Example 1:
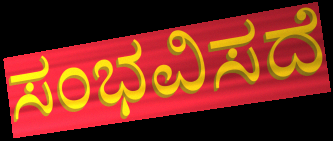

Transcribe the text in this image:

ಸಂಭವಿಸದೆ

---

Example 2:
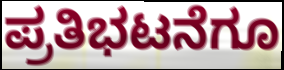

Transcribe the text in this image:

ಪ್ರತಿಭಟನೆಗೂ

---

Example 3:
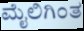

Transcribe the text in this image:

ಮೈಲಿಗಿಂತ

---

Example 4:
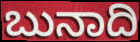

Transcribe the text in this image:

ಬುನಾದಿ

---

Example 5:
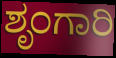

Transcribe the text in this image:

ಶೃಂಗಾರಿ